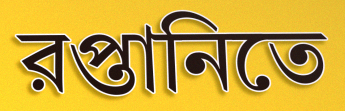
রপ্তানিতে